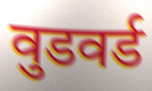
वुडवर्ड